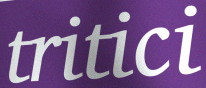
tritici